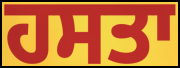
ਹਸਤਾ